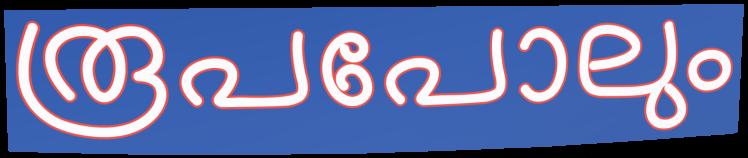
രൂപപോലും